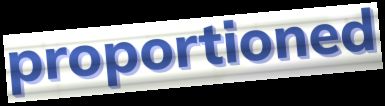
proportioned